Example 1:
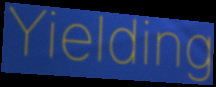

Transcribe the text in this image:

Yielding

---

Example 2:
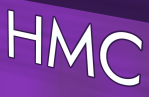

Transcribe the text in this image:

HMC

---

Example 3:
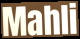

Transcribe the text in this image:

Mahli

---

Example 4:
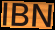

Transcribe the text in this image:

IBN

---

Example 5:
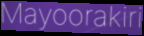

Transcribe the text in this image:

Mayoorakiri